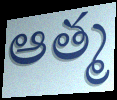
ఆత్మ